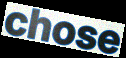
chose